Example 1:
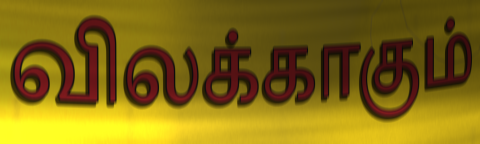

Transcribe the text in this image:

விலக்காகும்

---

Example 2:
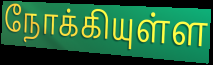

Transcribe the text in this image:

நோக்கியுள்ள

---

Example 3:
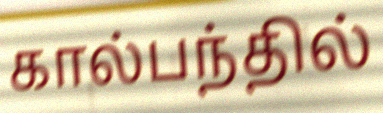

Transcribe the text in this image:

கால்பந்தில்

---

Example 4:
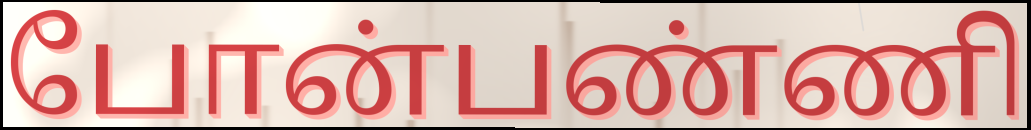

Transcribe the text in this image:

போன்பண்ணி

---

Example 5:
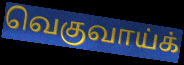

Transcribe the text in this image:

வெகுவாய்க்